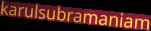
karulsubramaniam